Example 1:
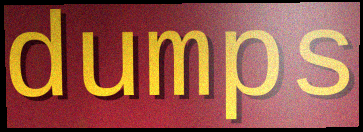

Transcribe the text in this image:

dumps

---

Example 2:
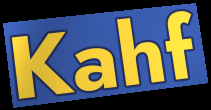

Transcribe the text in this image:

Kahf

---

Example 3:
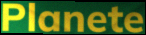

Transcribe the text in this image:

Planete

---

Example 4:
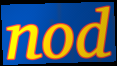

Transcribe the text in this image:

nod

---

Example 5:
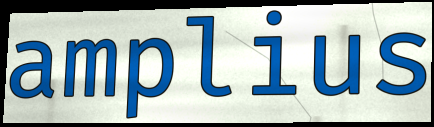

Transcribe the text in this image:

amplius